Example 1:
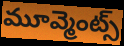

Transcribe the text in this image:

మూవ్మెంట్స్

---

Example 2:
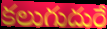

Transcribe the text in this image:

కలుగుదురే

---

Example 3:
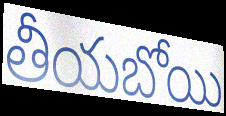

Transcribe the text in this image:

తీయబోయి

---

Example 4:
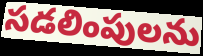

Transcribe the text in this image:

సడలింపులను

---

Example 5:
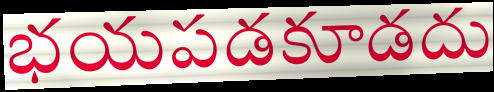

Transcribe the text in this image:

భయపడకూడదు